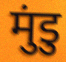
मुंडु